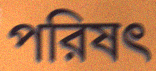
পরিষৎ